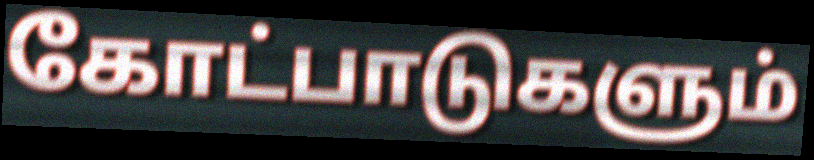
கோட்பாடுகளும்